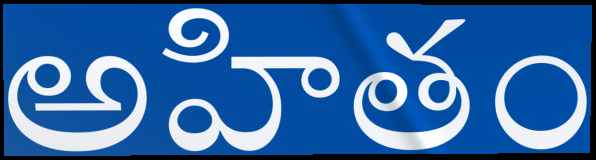
అహితం